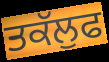
ਤਕੱਲੁਫ